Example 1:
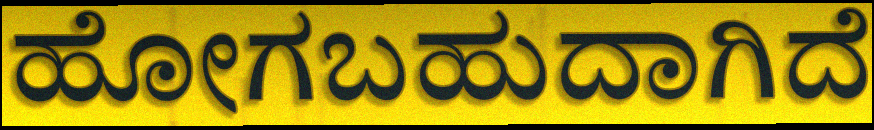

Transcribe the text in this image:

ಹೋಗಬಹುದಾಗಿದೆ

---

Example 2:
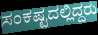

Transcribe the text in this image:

ಸಂಕಷ್ಟದಲ್ಲಿದ್ದರು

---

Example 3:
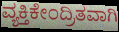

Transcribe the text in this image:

ವ್ಯಕ್ತಿಕೇಂದ್ರಿತವಾಗಿ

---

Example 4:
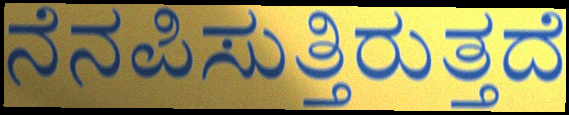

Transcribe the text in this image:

ನೆನಪಿಸುತ್ತಿರುತ್ತದೆ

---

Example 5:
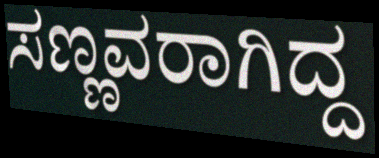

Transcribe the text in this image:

ಸಣ್ಣವರಾಗಿದ್ದ